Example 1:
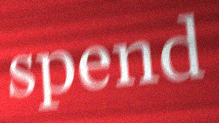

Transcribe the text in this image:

spend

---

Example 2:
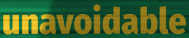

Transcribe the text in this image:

unavoidable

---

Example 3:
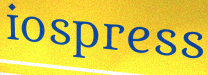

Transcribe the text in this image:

iospress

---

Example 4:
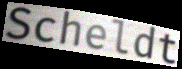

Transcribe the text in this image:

Scheldt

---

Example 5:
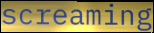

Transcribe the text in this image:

screaming